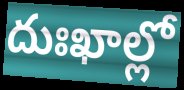
దుఃఖాల్లో